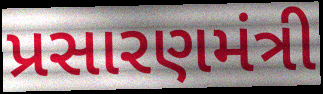
પ્રસારણમંત્રી